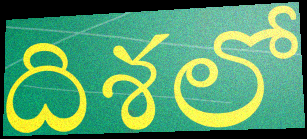
దిశలో